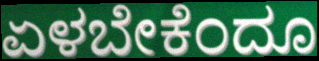
ಏಳಬೇಕೆಂದೂ